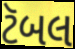
ટૅબલ